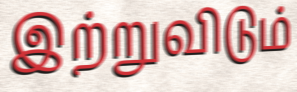
இற்றுவிடும்